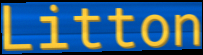
Litton